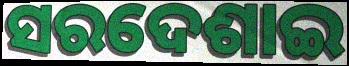
ସରଦେଶାଇ